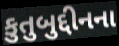
કુતુબુદ્દીનના